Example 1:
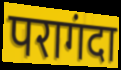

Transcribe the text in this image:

परागंदा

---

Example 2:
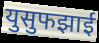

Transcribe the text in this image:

युसुफझाई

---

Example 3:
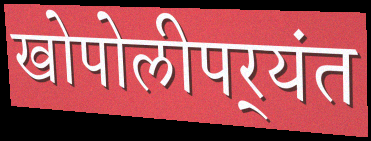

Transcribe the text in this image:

खोपोलीपर्यंत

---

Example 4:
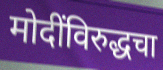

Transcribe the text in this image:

मोदींविरुद्धचा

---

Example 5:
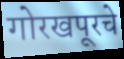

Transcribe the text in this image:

गोरखपूरचे